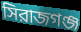
সিরাজগঞ্জ